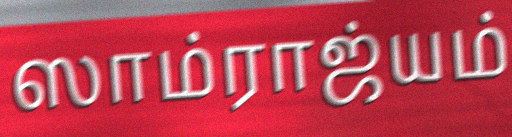
ஸாம்ராஜ்யம்